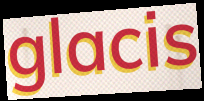
glacis